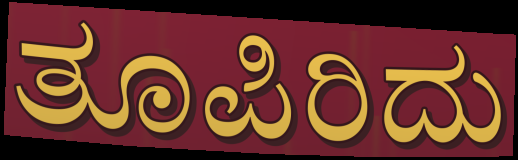
ತೂಪಿರಿದು